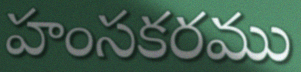
హంసకరము